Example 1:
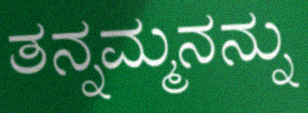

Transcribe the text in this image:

ತನ್ನಮ್ಮನನ್ನು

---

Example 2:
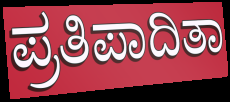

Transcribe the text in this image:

ಪ್ರತಿಪಾದಿತಾ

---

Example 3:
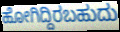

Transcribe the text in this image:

ಹೋಗಿದ್ದಿರಬಹುದು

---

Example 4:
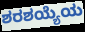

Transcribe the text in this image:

ಶರಶಯ್ಯೆಯ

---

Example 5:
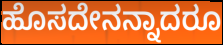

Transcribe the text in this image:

ಹೊಸದೇನನ್ನಾದರೂ